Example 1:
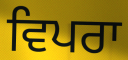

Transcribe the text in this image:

ਵਿਪਰਾ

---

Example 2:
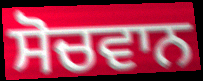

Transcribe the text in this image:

ਸੋਚਵਾਨ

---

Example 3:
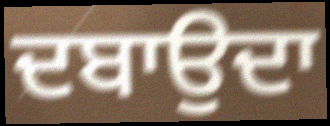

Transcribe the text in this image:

ਦਬਾਉਦਾ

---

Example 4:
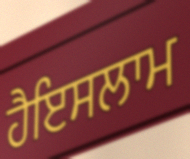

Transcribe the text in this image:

ਹੈਇਸਲਾਮ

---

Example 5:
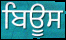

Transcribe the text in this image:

ਬਿਊਸ